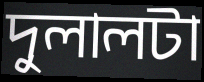
দুলালটা